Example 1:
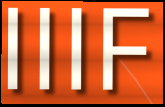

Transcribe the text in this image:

IIIF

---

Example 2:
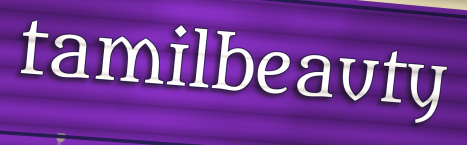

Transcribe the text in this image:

tamilbeauty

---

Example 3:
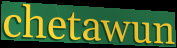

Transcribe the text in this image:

chetawun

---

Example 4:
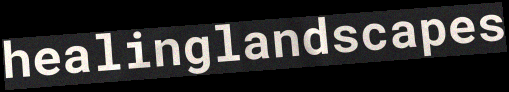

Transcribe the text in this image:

healinglandscapes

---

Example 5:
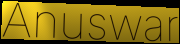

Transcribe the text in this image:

Anuswar